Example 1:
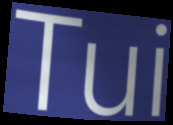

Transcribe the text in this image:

Tui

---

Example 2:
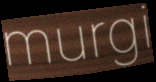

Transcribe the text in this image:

murgi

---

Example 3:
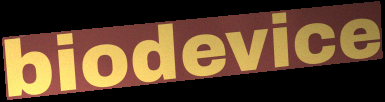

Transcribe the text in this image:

biodevice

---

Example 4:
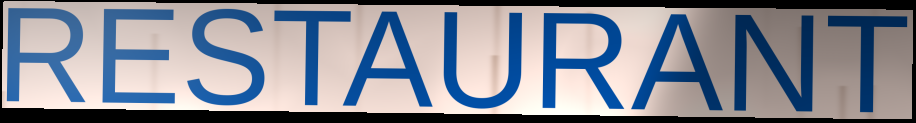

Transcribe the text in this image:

RESTAURANT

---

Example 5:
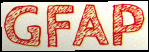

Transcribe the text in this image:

GFAP